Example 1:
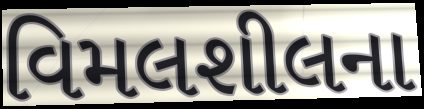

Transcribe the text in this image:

વિમલશીલના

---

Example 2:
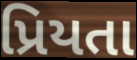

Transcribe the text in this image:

પ્રિયતા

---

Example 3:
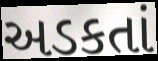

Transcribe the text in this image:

અડકતાં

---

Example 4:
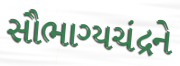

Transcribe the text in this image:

સૌભાગ્યચંદ્રને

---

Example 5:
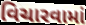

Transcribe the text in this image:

વિચારવામાં